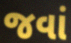
જવાં